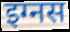
इग्नस